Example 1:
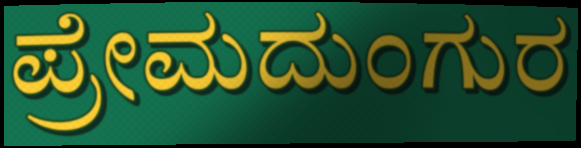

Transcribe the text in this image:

ಪ್ರೇಮದುಂಗುರ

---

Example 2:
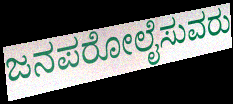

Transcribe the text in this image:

ಜನಪರೋಲೈಸುವರು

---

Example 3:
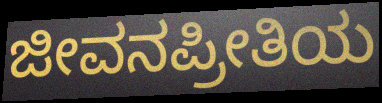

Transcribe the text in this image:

ಜೀವನಪ್ರೀತಿಯ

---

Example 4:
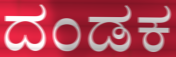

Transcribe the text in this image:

ದಂಡಕ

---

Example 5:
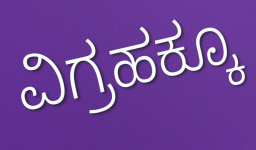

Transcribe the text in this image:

ವಿಗ್ರಹಕ್ಕೂ